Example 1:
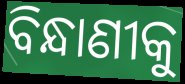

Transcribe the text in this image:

ବିନ୍ଧାଣୀକୁ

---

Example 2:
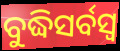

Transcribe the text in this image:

ବୁଦ୍ଧିସର୍ବସ୍ୱ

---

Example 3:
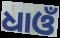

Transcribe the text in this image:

ଧାଓଁ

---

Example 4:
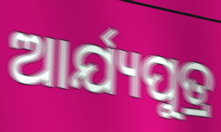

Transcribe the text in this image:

ଆର୍ଯ୍ୟପୁତ୍ର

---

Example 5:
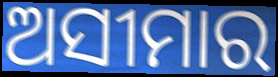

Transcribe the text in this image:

ଅସୀମାର